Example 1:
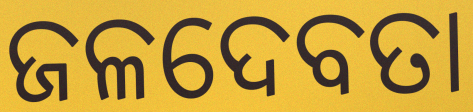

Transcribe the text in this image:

ଜଳଦେବତା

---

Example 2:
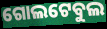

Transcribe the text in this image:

ଗୋଲଟେବୁଲ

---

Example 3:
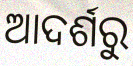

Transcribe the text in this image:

ଆଦର୍ଶରୁ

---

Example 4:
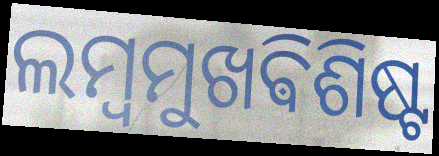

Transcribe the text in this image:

ଲମ୍ବମୁଖଵିଶିଷ୍ଟ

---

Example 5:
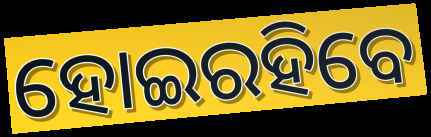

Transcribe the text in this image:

ହୋଇରହିବେ